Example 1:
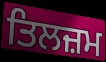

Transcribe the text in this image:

ਤਿਲਜ਼ਮ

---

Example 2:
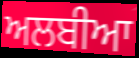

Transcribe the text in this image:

ਅਲਬੀਆ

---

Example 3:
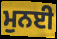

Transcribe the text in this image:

ਮੁਨਈ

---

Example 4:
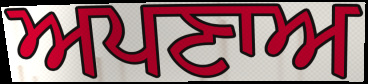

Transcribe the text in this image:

ਅਪਣਾਅ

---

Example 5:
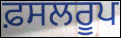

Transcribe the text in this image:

ਫ਼ਸਲਰੂਪ